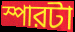
স্পারটা